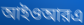
আইওআরএ